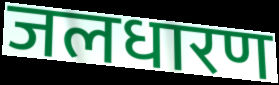
जलधारण